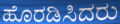
ಹೊರಡಿಸಿದರು